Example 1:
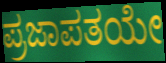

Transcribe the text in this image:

ಪ್ರಜಾಪತಯೇ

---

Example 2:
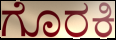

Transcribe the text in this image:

ಗೊರಕಿ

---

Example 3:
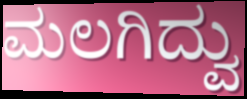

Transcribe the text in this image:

ಮಲಗಿದ್ವು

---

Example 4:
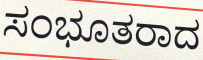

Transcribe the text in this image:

ಸಂಭೂತರಾದ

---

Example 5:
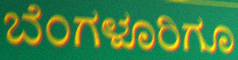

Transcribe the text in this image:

ಬೆಂಗಳೂರಿಗೂ